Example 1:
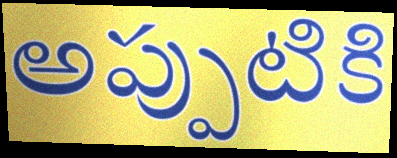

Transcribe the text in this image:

అప్పుటికి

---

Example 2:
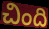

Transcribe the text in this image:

చింది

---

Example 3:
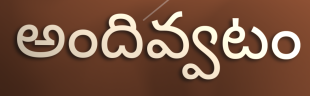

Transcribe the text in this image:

అందివ్వటం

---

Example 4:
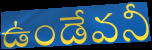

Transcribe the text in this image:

ఉండేవనీ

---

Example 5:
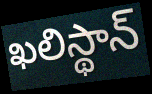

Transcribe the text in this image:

ఖలిస్థాన్